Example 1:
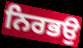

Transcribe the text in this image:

ਨਿਰਭਉ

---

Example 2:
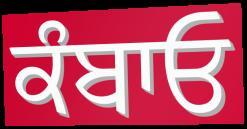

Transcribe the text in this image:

ਕੰਬਾਓ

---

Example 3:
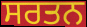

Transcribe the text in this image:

ਸਰਤਨ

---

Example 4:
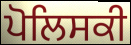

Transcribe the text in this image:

ਪੋਲਿਸਕੀ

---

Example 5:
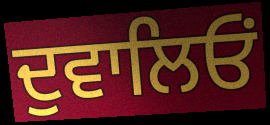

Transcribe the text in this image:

ਦੁਵਾਲਿਓਂ